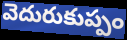
వెదురుకుప్పం